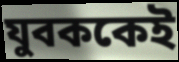
যুবককেই